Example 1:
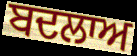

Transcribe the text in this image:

ਬਦਲਾਅ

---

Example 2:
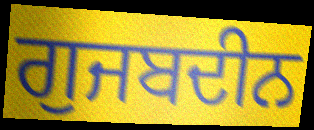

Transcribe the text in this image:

ਗੁਜਬਦੀਨ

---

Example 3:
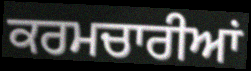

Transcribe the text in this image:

ਕਰਮਚਾਰੀਆਂ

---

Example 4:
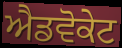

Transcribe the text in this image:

ਐਡਵੋਕੇਟ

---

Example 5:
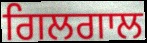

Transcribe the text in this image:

ਗਿਲਗਾਲ